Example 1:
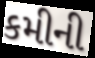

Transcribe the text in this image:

કમીની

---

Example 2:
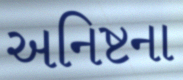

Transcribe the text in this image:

અનિષ્ટના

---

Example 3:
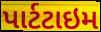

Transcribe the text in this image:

પાર્ટટાઇમ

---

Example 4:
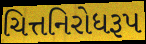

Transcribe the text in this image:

ચિત્તનિરોધરૂપ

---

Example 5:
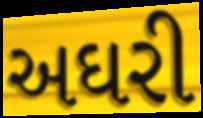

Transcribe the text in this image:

અઘરી